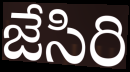
జేసిరి